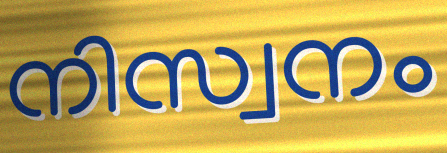
നിസ്വനം